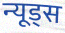
न्यूड्स